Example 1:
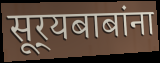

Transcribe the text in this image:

सूर्यबाबांना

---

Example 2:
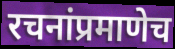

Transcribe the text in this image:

रचनांप्रमाणेच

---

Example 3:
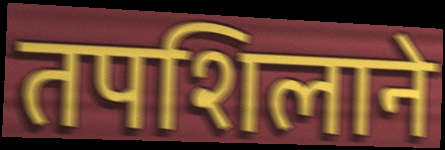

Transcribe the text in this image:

तपशिलाने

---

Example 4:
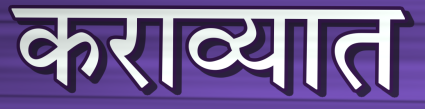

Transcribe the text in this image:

कराव्यात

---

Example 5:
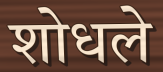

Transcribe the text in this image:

शोधले